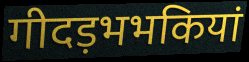
गीदड़भभकियां